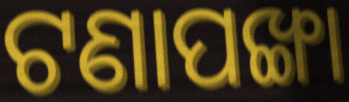
ଟଣାପଙ୍ଖା